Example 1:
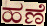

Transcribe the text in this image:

ಹಣೆ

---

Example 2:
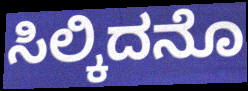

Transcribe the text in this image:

ಸಿಲ್ಕಿದನೊ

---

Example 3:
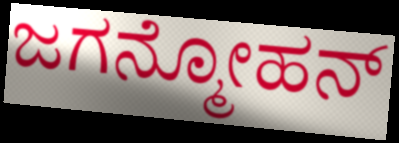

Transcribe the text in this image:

ಜಗನ್ಮೋಹನ್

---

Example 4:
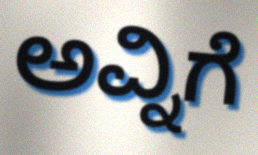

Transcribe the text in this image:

ಅವ್ನಿಗೆ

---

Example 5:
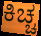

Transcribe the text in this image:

ಕಿಚ್ಚ